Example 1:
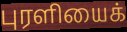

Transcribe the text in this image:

புரளியைக்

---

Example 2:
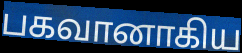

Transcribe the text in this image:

பகவானாகிய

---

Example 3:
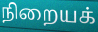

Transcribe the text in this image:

நிறையக்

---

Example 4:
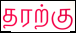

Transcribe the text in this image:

தரற்கு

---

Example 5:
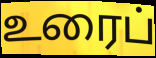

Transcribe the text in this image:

உரைப்